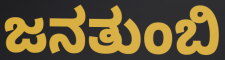
ಜನತುಂಬಿ